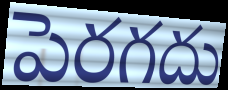
పెరగదు